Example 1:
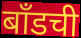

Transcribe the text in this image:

बाँडची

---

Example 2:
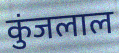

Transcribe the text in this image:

कुंजलाल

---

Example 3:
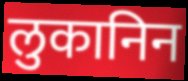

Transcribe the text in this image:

लुकानिन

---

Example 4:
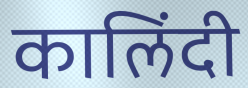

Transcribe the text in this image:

कालिंदी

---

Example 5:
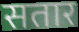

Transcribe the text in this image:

सतार